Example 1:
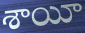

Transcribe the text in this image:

శాయీ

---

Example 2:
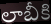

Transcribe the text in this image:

లాబీకి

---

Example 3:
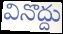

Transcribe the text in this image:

వినొద్దు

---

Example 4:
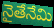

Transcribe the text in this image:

నైతేనేమి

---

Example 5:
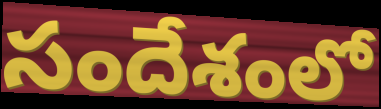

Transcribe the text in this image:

సందేశంలో